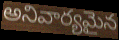
అనివార్యమైన